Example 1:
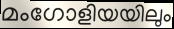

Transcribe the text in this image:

മംഗോളിയയിലും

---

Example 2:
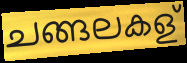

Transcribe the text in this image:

ചങ്ങലകള്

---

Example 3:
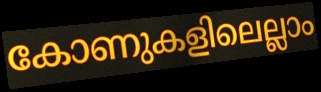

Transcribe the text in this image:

കോണുകളിലെല്ലാം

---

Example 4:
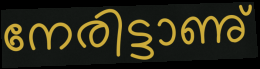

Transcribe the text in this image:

നേരിട്ടാണു്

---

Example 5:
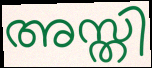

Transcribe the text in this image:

അസ്തി